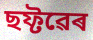
ছফ্টৱেৰ